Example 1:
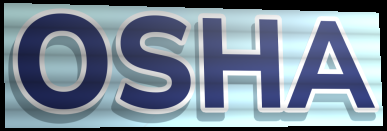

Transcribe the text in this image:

OSHA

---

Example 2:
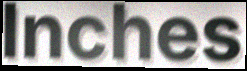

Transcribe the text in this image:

Inches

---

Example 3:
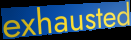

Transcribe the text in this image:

exhausted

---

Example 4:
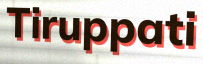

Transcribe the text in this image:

Tiruppati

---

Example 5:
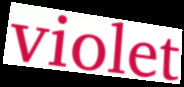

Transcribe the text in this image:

violet